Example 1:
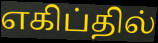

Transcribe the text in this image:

எகிப்தில்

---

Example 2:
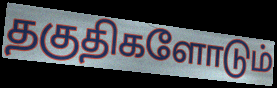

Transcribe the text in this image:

தகுதிகளோடும்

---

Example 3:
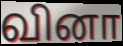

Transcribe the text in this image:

வினா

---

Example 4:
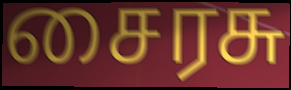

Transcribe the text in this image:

சைரசு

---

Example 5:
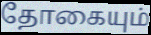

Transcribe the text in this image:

தோகையும்